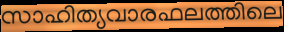
സാഹിത്യവാരഫലത്തിലെ